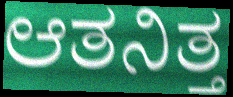
ಆತನಿತ್ತ